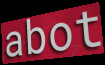
abot